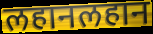
लहानलहान